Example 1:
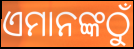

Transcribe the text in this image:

ଏମାନଙ୍କଠୁଁ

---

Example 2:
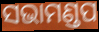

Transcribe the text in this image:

ସଭାମଣ୍ଡପ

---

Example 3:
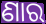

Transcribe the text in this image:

ଣାର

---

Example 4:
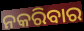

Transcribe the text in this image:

ନକରିବାର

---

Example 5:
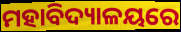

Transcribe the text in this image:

ମହାବିଦ୍ୟାଳୟରେ